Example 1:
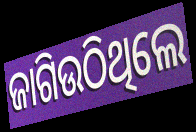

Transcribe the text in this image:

ଜାଗିଉଠିଥିଲେ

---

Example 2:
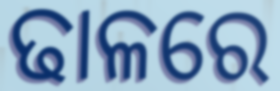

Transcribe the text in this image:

ଢାଳରେ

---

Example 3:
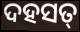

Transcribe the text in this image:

ଦହସତ୍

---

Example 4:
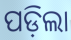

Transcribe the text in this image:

ପଡ଼ିଲା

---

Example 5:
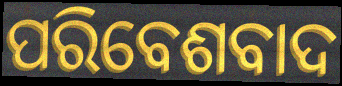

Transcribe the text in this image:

ପରିବେଶବାଦ